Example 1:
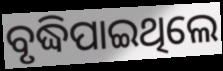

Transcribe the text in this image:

ବୃଦ୍ଧିପାଇଥିଲେ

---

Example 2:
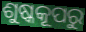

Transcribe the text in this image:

ଶୁଷ୍କକୂପରୁ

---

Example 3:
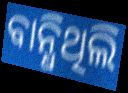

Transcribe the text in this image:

ବାନ୍ଧିଥିଲି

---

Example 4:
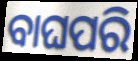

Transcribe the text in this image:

ବାଘପରି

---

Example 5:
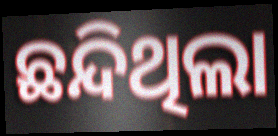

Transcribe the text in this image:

ଛନ୍ଦିଥିଲା